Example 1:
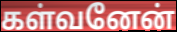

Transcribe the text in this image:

கள்வனேன்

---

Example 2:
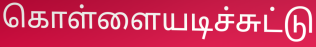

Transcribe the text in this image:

கொள்ளையடிச்சுட்டு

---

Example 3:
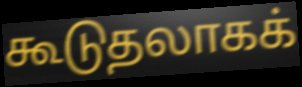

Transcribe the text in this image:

கூடுதலாகக்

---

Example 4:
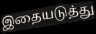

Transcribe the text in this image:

இதையடுத்து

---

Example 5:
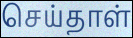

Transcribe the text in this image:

செய்தாள்